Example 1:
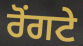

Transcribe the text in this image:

ਰੋੰਗਟੇ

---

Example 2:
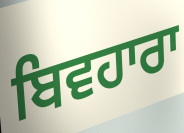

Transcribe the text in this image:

ਬਿਵਹਾਰਾ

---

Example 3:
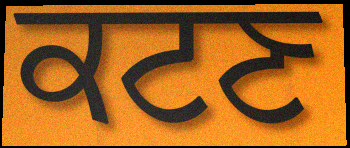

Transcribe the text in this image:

ਕਟਣ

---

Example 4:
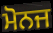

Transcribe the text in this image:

ਮੋਨਜ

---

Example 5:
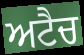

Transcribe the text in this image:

ਅਟੈਚ